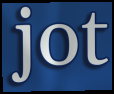
jot